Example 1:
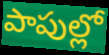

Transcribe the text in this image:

పాపుల్లో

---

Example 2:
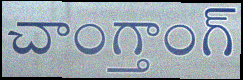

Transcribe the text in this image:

చాంగ్తాంగ్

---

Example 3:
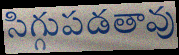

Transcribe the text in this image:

సిగ్గుపడతావు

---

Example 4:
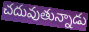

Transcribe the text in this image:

చదువుతున్నాడు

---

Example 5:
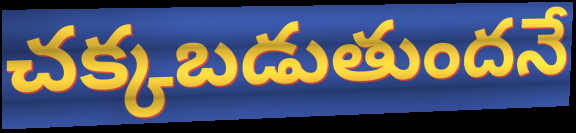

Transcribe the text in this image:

చక్కబడుతుందనే